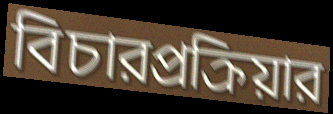
বিচারপ্রক্রিয়ার